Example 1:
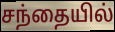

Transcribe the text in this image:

சந்தையில்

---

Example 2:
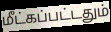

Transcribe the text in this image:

மீட்கப்பட்டதும்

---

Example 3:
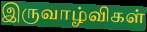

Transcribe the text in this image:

இருவாழ்விகள்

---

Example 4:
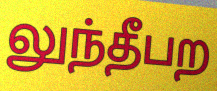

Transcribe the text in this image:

லுந்தீபற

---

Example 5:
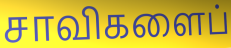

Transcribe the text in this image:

சாவிகளைப்